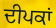
ਦੀਪਕਾਂ